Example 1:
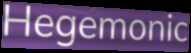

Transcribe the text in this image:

Hegemonic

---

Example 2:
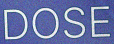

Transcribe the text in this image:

DOSE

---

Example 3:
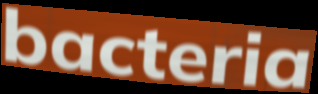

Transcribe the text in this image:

bacteria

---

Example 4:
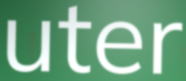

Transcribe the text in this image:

uter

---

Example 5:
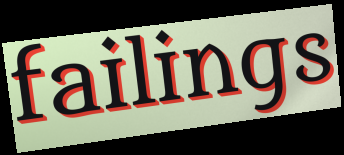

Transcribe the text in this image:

failings